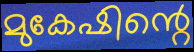
മുകേഷിന്റെ